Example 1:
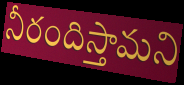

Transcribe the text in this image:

నీరందిస్తామని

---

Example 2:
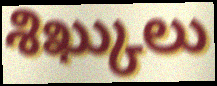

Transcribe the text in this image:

శిఖ్కులు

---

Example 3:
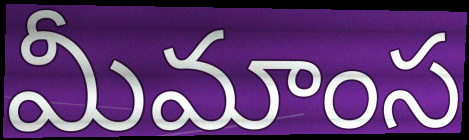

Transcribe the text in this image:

మీమాంస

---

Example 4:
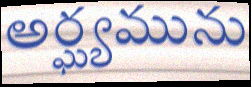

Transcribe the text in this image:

అర్ఘ్యమును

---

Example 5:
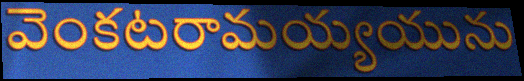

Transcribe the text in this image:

వెంకటరామయ్యయును